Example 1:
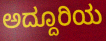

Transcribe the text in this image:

ಅದ್ದೂರಿಯ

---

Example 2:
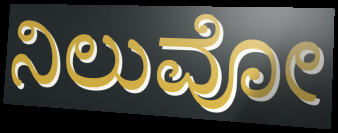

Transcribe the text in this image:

ನಿಲುವೋ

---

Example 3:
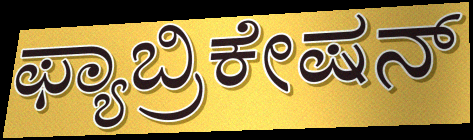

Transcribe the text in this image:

ಫ್ಯಾಬ್ರಿಕೇಷನ್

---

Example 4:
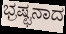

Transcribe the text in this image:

ಭ್ರಷ್ಟನಾದ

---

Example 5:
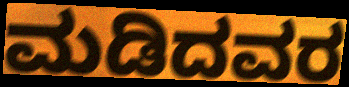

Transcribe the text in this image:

ಮಡಿದವರ